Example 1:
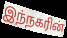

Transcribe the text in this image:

இந்நகரின்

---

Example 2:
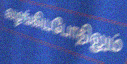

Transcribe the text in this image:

வழங்கியபோதிலும்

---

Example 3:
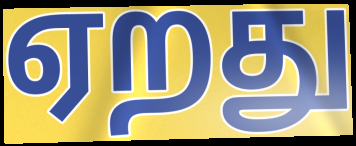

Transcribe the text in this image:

ஏறது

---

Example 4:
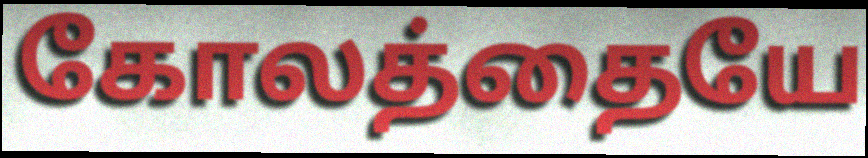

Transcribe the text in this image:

கோலத்தையே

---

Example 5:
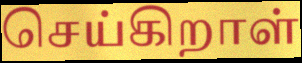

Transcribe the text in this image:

செய்கிறாள்